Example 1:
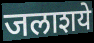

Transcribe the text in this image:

जलाशये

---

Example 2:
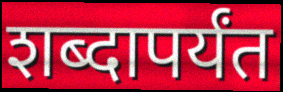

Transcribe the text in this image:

शब्दापर्यंत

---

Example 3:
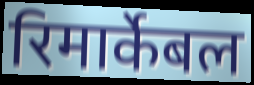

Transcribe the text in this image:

रिमार्केबल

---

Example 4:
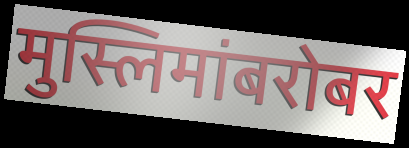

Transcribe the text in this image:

मुस्लिमांबरोबर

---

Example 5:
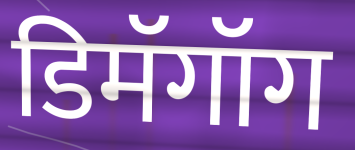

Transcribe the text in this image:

डिमॅगॉग